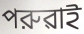
পৰুৱাই